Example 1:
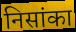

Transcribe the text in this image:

निसांका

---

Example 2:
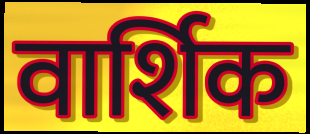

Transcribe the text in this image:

वार्शिक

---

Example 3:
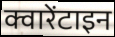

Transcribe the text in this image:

क्वारेंटाइन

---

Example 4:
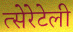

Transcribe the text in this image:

त्सेरेटेली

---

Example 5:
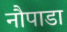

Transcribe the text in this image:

नौपाडा